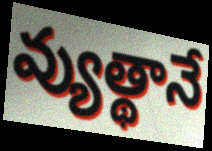
వ్యుత్థానే